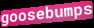
goosebumps